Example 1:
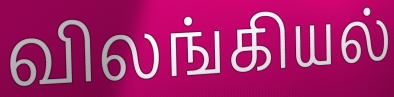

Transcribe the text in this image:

விலங்கியல்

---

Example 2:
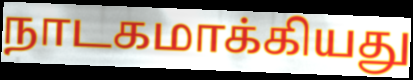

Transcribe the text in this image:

நாடகமாக்கியது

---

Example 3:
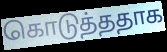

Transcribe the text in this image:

கொடுத்ததாக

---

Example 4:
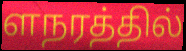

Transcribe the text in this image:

ளநரத்தில்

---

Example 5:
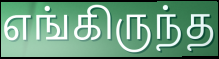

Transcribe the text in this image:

எங்கிருந்த